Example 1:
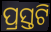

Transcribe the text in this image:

ପ୍ରସ୍ତଟି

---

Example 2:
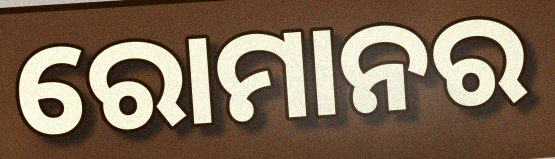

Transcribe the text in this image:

ରୋମାନର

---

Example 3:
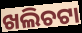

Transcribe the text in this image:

ଖଲିଚଟା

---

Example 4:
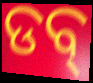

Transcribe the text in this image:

ଡବ୍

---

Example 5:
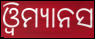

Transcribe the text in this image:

ଓ୍ବିମ୍ୟାନସ